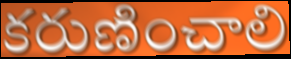
కరుణించాలి